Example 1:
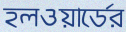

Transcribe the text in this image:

হলওয়ার্ডের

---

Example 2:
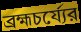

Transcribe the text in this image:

ব্রহ্মচর্য্যের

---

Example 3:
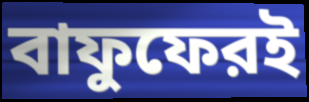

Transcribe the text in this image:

বাফুফেরই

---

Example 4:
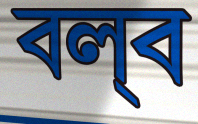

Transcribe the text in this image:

বল্‌ব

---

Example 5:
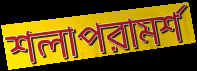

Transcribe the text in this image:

শলাপরামর্শ